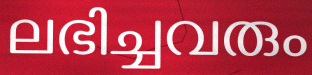
ലഭിച്ചവരും